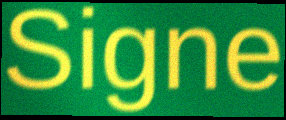
Signe